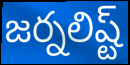
జర్నలిష్ట్